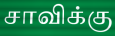
சாவிக்கு